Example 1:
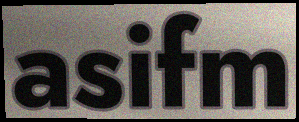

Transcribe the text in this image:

asifm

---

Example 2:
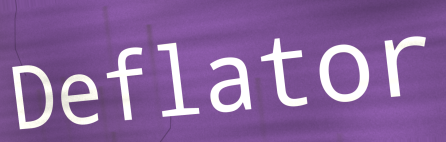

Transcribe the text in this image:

Deflator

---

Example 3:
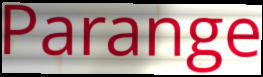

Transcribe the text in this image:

Parange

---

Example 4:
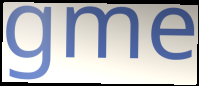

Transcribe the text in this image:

gme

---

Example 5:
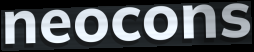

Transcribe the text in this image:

neocons